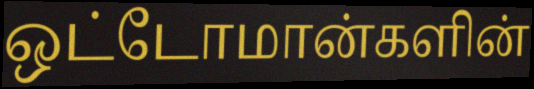
ஒட்டோமான்களின்